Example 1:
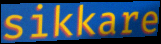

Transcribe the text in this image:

sikkare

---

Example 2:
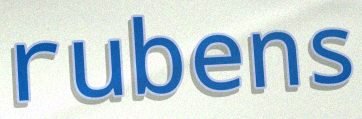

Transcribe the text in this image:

rubens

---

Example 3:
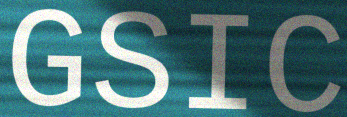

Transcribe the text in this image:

GSIC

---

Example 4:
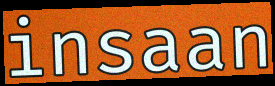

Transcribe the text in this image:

insaan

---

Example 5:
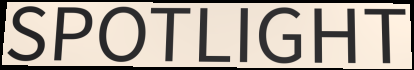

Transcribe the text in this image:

SPOTLIGHT